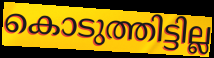
കൊടുത്തിട്ടില്ല